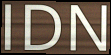
IDN